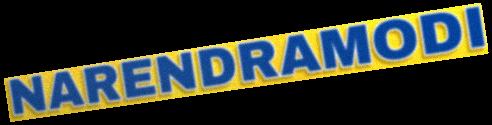
NARENDRAMODI